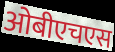
ओबीएचएस